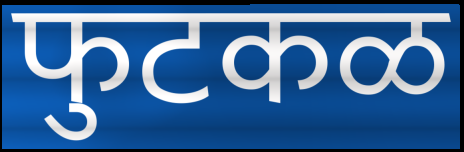
फुटकळ